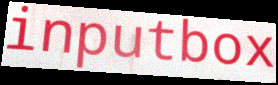
inputbox